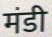
मंडी